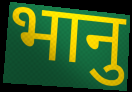
भानु